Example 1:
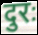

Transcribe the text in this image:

दुरः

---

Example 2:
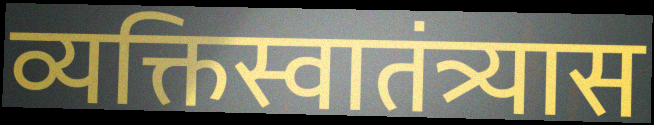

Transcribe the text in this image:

व्यक्तिस्वातंत्र्यास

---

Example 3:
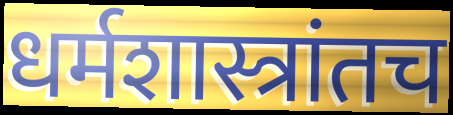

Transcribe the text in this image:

धर्मशास्त्रांतच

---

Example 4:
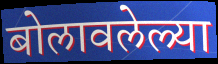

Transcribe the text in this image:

बोलावलेल्या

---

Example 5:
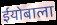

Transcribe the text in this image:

ईयोबाला